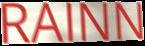
RAINN